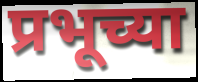
प्रभूच्या